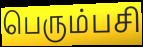
பெரும்பசி